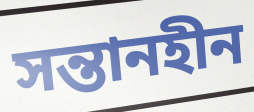
সন্তানহীন